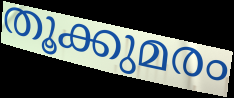
തൂക്കുമരം